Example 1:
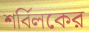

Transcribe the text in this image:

শর্বিলকের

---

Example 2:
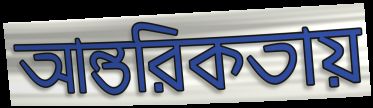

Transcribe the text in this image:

আন্তরিকতায়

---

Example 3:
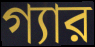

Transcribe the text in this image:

গ্যার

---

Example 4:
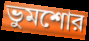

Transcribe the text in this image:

ভুমশোর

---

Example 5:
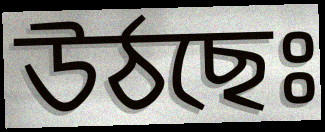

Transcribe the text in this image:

উঠছেঃ